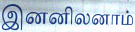
இனனிலனாம்